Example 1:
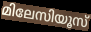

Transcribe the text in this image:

മിലേസിയൂസ്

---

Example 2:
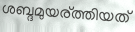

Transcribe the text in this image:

ശബ്ദമുയര്ത്തിയത്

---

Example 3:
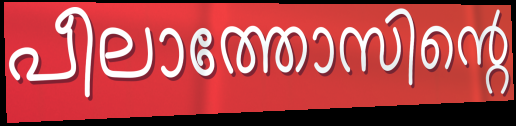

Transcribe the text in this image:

പീലാത്തോസിന്റെ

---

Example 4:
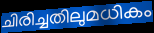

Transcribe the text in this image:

ചിരിച്ചതിലുമധികം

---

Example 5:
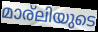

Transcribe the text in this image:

മാര്ലിയുടെ